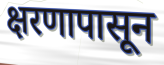
क्षरणापासून